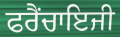
ਫਰੈਂਚਾਇਜੀ